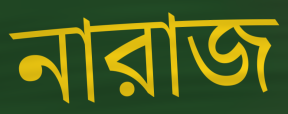
নারাজ